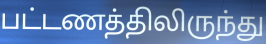
பட்டணத்திலிருந்து